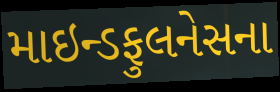
માઇન્ડફુલનેસના